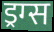
ड्रग्स